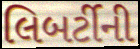
લિબર્ટીની